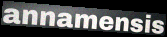
annamensis